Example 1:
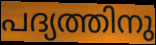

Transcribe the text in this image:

പദ്യത്തിനു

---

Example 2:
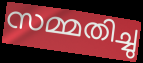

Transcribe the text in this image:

സമ്മതിച്ചു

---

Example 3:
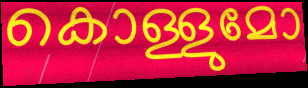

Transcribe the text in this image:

കൊള്ളുമോ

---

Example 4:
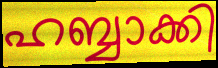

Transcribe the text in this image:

ഹബ്ബാക്കി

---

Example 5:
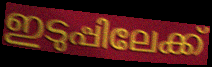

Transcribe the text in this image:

ഇടുപ്പിലേക്ക്